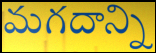
మగదాన్ని